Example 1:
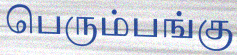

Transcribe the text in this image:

பெரும்பங்கு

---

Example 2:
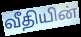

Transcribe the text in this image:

வீதியின்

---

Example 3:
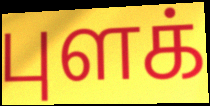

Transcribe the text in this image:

புளக்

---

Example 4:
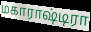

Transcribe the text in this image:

மகாராஷ்டிரா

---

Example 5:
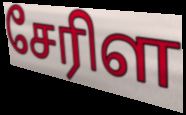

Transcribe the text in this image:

சேரிள